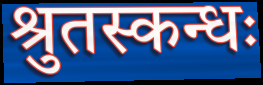
श्रुतस्कन्धः